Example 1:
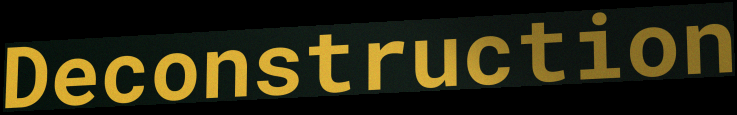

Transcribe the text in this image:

Deconstruction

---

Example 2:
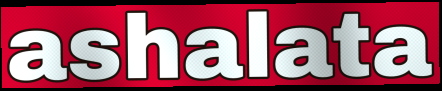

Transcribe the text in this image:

ashalata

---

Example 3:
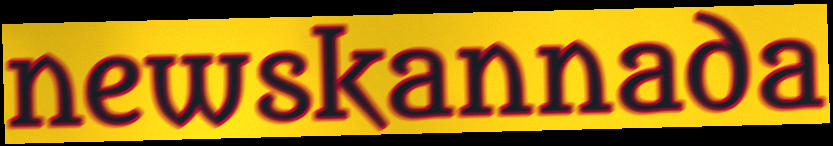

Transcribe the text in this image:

newskannada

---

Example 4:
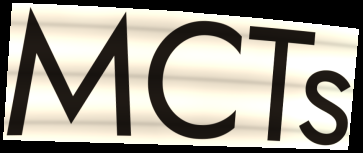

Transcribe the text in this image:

MCTs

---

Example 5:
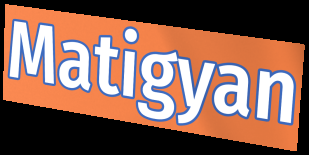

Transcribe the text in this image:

Matigyan